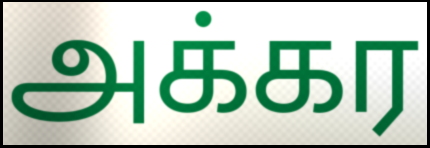
அக்கர